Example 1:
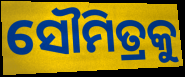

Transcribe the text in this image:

ସୌମିତ୍ରକୁ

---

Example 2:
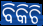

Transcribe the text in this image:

ବିକିଚି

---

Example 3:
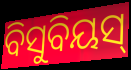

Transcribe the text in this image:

ବିସୁବିୟସ୍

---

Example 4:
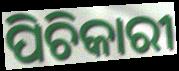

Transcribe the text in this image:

ପିଚିକାରୀ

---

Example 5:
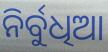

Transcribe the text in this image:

ନିର୍ବୁଧିଆ